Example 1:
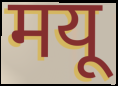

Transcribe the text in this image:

मयू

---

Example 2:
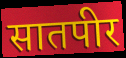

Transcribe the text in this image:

सातपीर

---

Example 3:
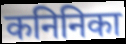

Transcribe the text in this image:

कनिनिका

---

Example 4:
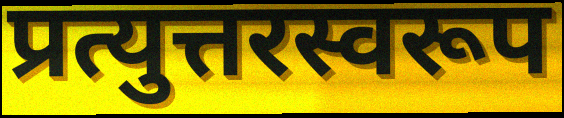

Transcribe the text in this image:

प्रत्युत्तरस्वरूप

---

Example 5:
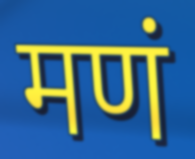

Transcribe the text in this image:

मणं